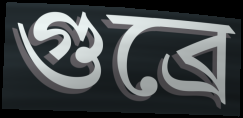
গুব্রে